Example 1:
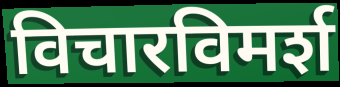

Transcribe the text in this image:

विचारविमर्श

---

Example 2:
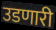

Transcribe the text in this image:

उडणारी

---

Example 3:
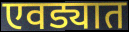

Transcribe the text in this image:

एवड्यात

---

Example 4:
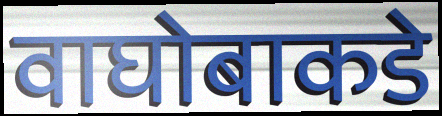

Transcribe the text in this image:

वाघोबाकडे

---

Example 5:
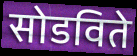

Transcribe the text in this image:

सोडविते